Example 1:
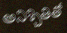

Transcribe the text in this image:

అనిశ్చితితో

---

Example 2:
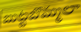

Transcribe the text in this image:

బుట్టబొమ్మలా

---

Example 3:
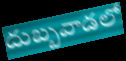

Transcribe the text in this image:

దుబ్బవాడలో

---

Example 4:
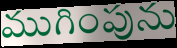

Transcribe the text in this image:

ముగింపును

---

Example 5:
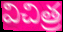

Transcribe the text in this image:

విచిత్ర